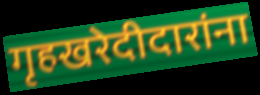
गृहखरेदीदारांना